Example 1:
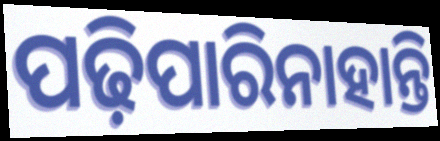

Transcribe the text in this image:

ପଢ଼ିପାରିନାହାନ୍ତି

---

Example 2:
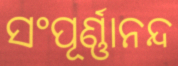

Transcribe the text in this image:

ସଂପୂର୍ଣ୍ଣାନନ୍ଦ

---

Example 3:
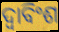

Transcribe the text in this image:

ଦ୍ଵାବିଂଶ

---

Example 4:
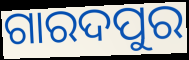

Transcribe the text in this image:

ଗାରଦପୁର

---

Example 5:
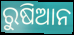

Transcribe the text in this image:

ରୁଷିଆନ